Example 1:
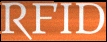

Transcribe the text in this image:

RFID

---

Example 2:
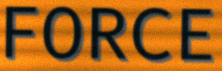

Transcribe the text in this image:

FORCE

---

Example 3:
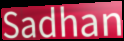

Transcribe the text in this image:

Sadhan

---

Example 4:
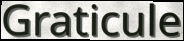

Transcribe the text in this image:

Graticule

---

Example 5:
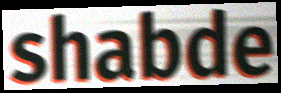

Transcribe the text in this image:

shabde